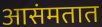
आसंमतात